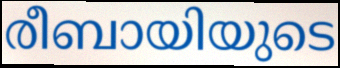
രീബായിയുടെ